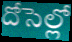
దోసెల్లో